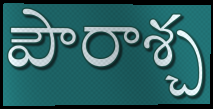
పౌరాశ్చ